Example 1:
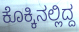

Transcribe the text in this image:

ಕೊಕ್ಕಿನಲ್ಲಿದ್ದ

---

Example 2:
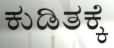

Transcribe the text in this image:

ಕುಡಿತಕ್ಕೆ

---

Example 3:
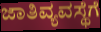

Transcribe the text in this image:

ಜಾತಿವ್ಯವಸ್ಥೆಗೆ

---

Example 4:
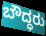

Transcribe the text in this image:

ಬೌದ್ಧರು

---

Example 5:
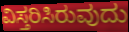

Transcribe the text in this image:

ವಿಸ್ತರಿಸಿರುವುದು